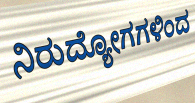
ನಿರುದ್ಯೋಗಗಳಿಂದ